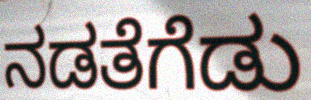
ನಡತೆಗೆಡು